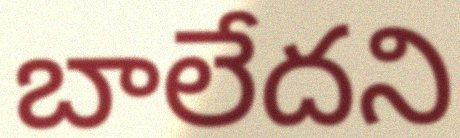
బాలేదని